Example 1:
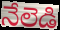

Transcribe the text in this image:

నేలెడి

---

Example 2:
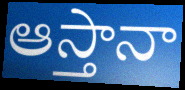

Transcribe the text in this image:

ఆస్తానా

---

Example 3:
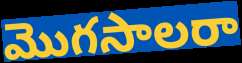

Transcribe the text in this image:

మొగసాలరా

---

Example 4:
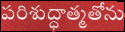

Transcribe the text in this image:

పరిశుద్ధాత్మతోను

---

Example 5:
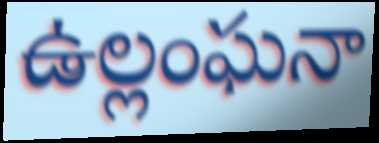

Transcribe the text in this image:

ఉల్లంఘనా